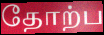
தோற்ப